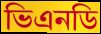
ভিএনডি